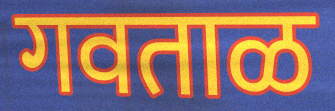
गवताळ